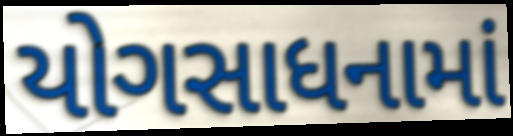
યોગસાધનામાં